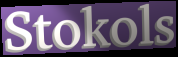
Stokols